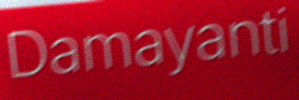
Damayanti